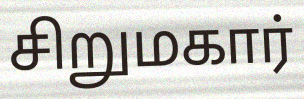
சிறுமகார்